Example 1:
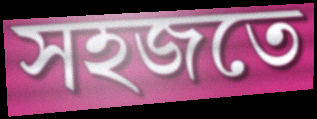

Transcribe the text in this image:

সহজতে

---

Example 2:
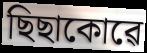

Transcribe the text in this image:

ছিছাকোৱে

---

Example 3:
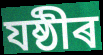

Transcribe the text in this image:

যষ্ঠীৰ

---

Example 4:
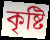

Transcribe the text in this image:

কৃষ্টি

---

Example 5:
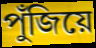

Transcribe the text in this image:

পুঁজিয়ে